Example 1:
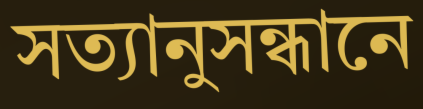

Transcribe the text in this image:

সত্যানুসন্ধানে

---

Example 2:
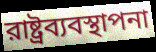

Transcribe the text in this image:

রাষ্ট্রব্যবস্থাপনা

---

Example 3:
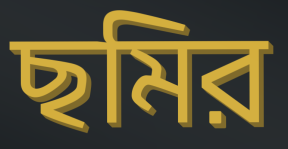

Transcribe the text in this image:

ছমির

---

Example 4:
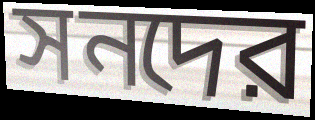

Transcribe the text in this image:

সনদের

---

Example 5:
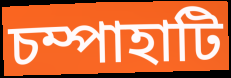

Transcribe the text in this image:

চম্পাহাটি